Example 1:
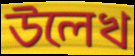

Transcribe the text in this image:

উলেখ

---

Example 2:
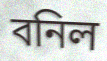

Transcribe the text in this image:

বনিল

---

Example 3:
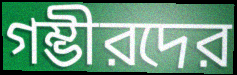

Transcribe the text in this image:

গম্ভীরদের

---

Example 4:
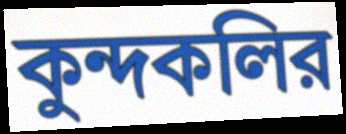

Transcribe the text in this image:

কুন্দকলির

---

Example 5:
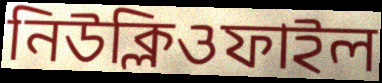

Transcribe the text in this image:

নিউক্লিওফাইল